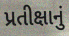
પ્રતીક્ષાનું